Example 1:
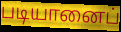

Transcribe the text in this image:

படியானைப்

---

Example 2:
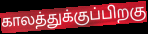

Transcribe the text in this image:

காலத்துக்குப்பிறகு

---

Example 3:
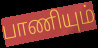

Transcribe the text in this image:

பாணியும்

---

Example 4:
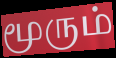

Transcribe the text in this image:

மூரும்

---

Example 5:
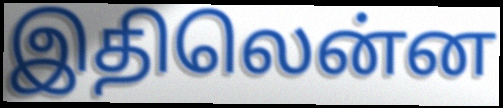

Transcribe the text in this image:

இதிலென்ன